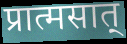
प्रात्मसात्